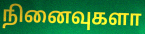
நினைவுகளா